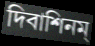
দিবাশিনম্